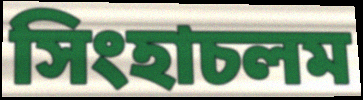
সিংহাচলম